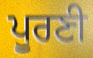
ਪੂਰਣੀ